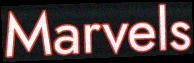
Marvels